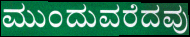
ಮುಂದುವರೆದವು